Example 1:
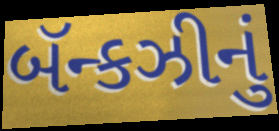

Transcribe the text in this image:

બૅન્કઝીનું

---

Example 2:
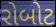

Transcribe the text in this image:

રોબોટ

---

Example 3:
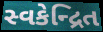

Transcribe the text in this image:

સ્વકેન્દ્રિત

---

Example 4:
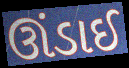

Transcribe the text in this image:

ઊંડાઈ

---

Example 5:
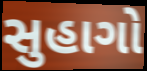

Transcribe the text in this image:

સુહાગો